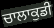
ਚਾਲਾਕੁਡੀ